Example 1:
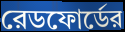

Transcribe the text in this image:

রেডফোর্ডের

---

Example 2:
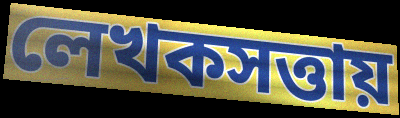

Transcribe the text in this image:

লেখকসত্তায়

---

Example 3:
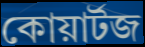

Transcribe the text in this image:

কোয়ার্টজ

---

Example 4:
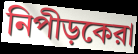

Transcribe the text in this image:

নিপীড়কেরা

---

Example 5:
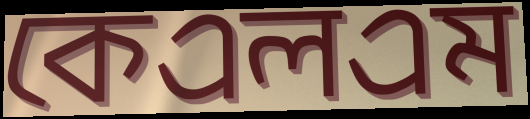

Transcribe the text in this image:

কেএলএম